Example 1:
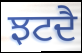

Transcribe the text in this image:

ਝਟਦੈ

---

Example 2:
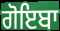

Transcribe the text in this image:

ਗੋਇਬਾ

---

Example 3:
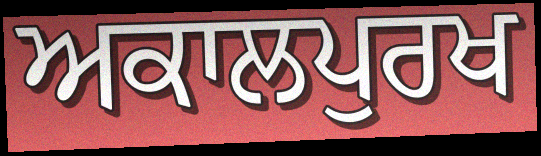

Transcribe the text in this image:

ਅਕਾਲਪੁਰਖ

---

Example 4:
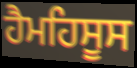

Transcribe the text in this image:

ਹੈਮਹਿਸੂਸ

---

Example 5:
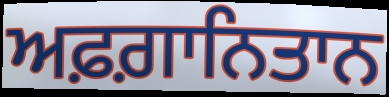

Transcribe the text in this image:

ਅਫ਼ਗ਼ਾਨਿਤਾਨ